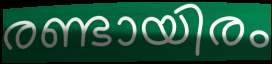
രണ്ടായിരം